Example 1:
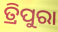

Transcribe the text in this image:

ତ୍ରିପୁରା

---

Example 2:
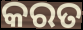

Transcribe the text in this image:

କରତ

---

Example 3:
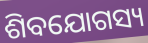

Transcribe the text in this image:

ଶିବଯୋଗସ୍ୟ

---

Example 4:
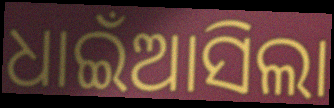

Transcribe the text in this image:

ଧାଇଁଆସିଲା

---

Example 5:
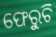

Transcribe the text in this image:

ଫେରୁଚି